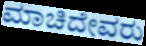
ಮಾಚಿದೇವರು